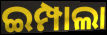
ଇମ୍ପାଲା